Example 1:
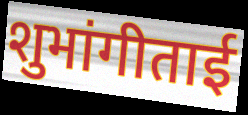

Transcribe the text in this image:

शुभांगीताई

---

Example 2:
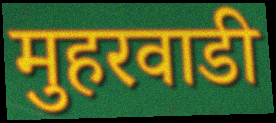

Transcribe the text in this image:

मुहरवाडी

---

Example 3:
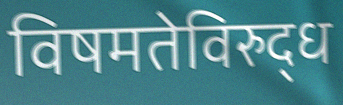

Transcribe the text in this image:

विषमतेविरुद्ध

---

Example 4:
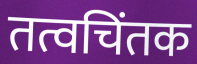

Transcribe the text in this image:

तत्वचिंतक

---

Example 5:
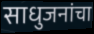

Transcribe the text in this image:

साधुजनांचा